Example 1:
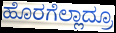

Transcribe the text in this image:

ಹೊರಗೆಲ್ಲಾದ್ರೂ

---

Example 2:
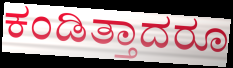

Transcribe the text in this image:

ಕಂಡಿತ್ತಾದರೂ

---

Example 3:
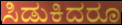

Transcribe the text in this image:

ಸಿಡುಕಿದರೂ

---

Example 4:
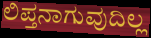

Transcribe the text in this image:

ಲಿಪ್ತನಾಗುವುದಿಲ್ಲ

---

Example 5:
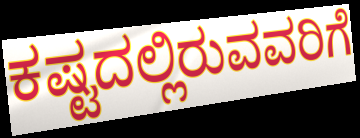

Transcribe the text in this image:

ಕಷ್ಟದಲ್ಲಿರುವವರಿಗೆ